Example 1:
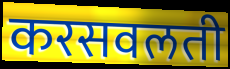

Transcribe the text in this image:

करसवलती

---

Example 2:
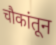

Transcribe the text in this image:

चौकांतून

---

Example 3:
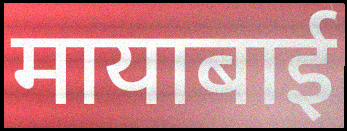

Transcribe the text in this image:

मायाबाई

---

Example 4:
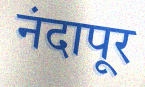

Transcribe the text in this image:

नंदापूर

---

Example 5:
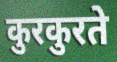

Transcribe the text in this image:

कुरकुरते